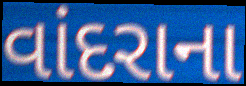
વાંદરાના